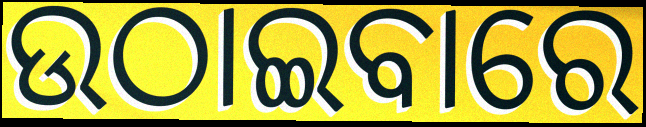
ଉଠାଇବାରେ